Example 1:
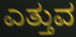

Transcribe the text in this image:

ಎತ್ತುವ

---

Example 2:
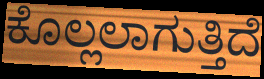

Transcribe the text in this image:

ಕೊಲ್ಲಲಾಗುತ್ತಿದೆ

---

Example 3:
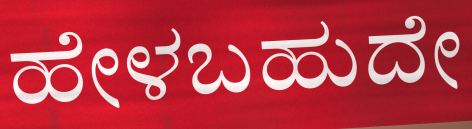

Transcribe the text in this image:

ಹೇಳಬಹುದೇ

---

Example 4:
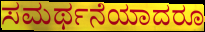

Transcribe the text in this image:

ಸಮರ್ಥನೆಯಾದರೂ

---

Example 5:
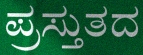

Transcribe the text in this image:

ಪ್ರಸ್ತುತದ